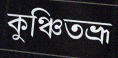
কুঞ্চিতভ্রূ